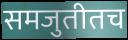
समजुतीतच